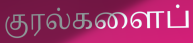
குரல்களைப்